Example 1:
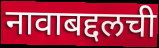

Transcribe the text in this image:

नावाबद्दलची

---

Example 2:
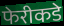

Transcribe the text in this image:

फेरीकडे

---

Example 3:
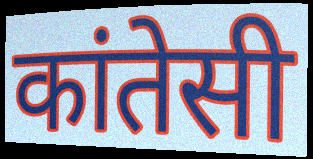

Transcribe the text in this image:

कांतेसी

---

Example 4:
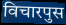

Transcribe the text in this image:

विचारपुस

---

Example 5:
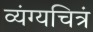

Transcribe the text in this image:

व्यंग्यचित्रं